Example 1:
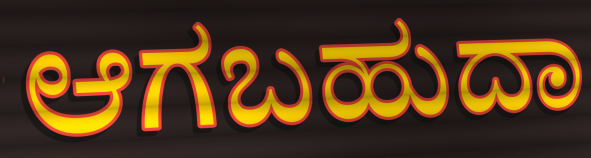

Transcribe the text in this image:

ಆಗಬಹುದಾ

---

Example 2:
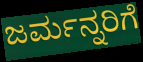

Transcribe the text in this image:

ಜರ್ಮನ್ನರಿಗೆ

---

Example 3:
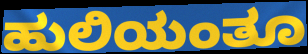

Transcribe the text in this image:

ಹುಲಿಯಂತೂ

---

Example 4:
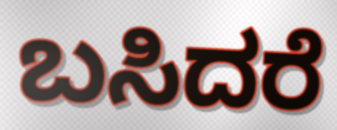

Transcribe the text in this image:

ಬಸಿದರೆ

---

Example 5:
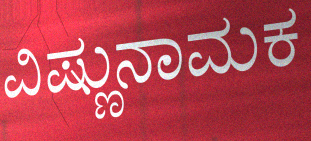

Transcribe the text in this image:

ವಿಷ್ಣುನಾಮಕ